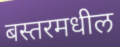
बस्तरमधील